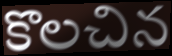
కొలచిన